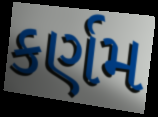
કર્ણમ